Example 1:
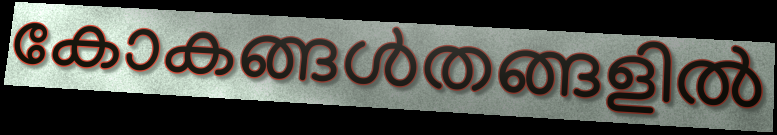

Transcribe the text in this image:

കോകങ്ങൾതങ്ങളിൽ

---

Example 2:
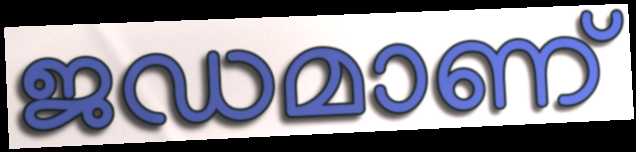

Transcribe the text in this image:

ജഡമാണ്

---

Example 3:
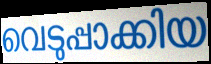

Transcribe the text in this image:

വെടുപ്പാക്കിയ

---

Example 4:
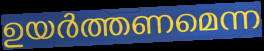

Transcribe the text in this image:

ഉയർത്തണമെന്ന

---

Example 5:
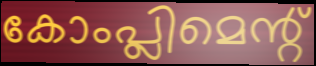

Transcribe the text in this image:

കോംപ്ലിമെന്റ്